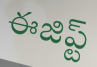
ఈజిప్ట్